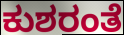
ಕುಶರಂತೆ